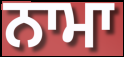
ਨਾਮਾ